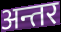
अन्‍तर